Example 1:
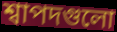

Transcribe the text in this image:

শ্বাপদগুলো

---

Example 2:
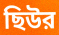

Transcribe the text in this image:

ছিউর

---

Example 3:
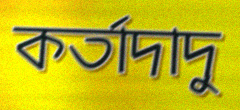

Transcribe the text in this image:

কর্তাদাদু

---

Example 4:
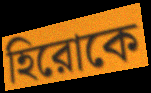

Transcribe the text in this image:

হিরোকে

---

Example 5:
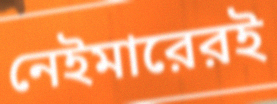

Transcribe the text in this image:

নেইমারেরই